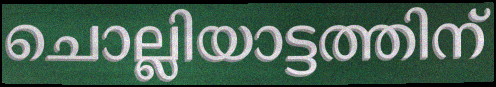
ചൊല്ലിയാട്ടത്തിന്